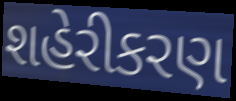
શહેરીકરણ